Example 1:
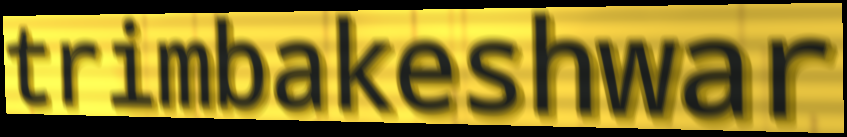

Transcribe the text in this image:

trimbakeshwar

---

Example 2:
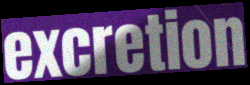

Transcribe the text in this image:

excretion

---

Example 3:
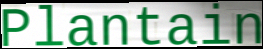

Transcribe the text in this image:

Plantain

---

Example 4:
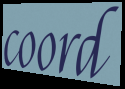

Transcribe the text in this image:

coord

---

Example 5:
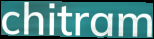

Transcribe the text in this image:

chitram